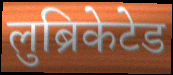
लुब्रिकेटेड